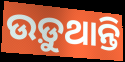
ଉଡ଼ୁଥାନ୍ତି